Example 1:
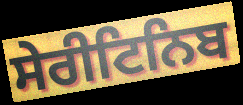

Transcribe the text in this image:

ਸੇਰੀਟਿਨਿਬ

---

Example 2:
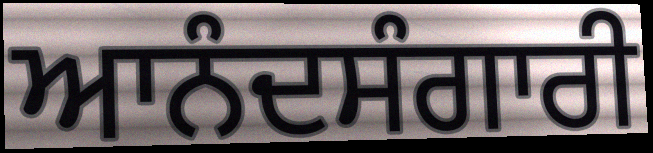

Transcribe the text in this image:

ਆਨੰਦਸੰਗਾਰੀ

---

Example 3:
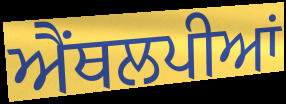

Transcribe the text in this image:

ਐਂਥਲਪੀਆਂ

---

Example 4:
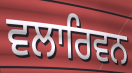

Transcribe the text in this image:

ਵਲਾਰਿਵਨ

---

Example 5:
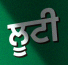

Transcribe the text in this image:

ਲੂਟੀ